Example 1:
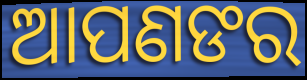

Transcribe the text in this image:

ଆପଣଙର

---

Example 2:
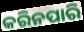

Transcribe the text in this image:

କରିନପାରି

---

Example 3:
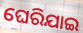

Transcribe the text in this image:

ଘେରିଯାଇ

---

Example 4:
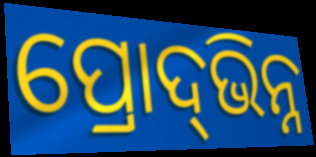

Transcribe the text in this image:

ପ୍ରୋଦ୍‌ଭିନ୍ନ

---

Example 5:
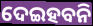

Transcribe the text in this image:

ଦେଇହବନି